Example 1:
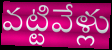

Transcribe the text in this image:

వట్టివేళ్లు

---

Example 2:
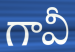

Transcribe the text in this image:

గావీ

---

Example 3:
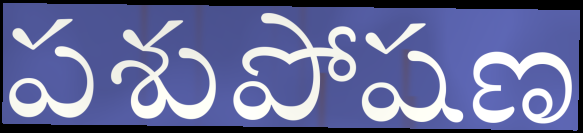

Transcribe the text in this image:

పశుపోషణ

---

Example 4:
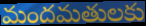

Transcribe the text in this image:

మందమతులకు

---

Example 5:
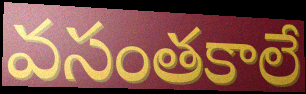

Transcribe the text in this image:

వసంతకాలే